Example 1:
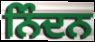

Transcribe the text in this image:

ਨਿੰਦਨ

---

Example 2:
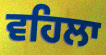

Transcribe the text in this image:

ਵਹਿਲਾ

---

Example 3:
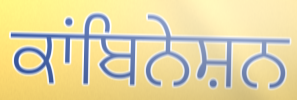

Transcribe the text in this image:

ਕਾਂਬਿਨੇਸ਼ਨ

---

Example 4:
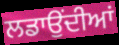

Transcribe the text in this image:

ਲਡਾਉਂਦੀਆਂ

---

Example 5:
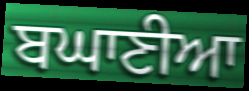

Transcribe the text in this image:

ਬਘਾਣੀਆ